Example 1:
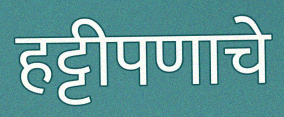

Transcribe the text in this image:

हट्टीपणाचे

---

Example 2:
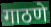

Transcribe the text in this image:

गाठणे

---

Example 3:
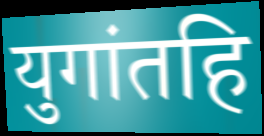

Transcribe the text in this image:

युगांतहि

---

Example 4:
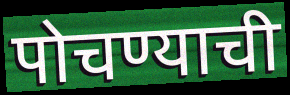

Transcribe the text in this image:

पोचण्याची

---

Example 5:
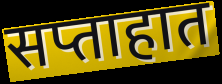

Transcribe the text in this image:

सप्ताहात